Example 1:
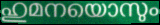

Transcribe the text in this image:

ഹുമനയൊസും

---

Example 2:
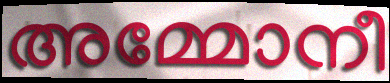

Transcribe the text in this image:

അമ്മോനീ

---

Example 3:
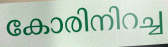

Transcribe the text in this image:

കോരിനിറച്ച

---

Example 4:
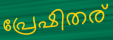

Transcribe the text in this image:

പ്രേഷിതര്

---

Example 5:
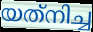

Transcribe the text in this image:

യത്‌നിച്ച